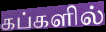
கப்களில்